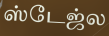
ஸ்டேஜ்ல